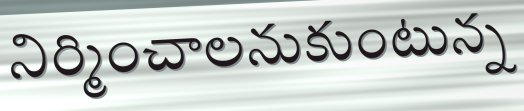
నిర్మించాలనుకుంటున్న